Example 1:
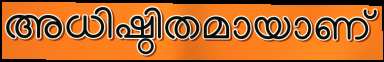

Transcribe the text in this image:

അധിഷ്ഠിതമായാണ്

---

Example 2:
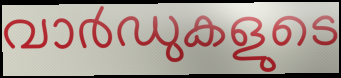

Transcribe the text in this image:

വാർഡുകളുടെ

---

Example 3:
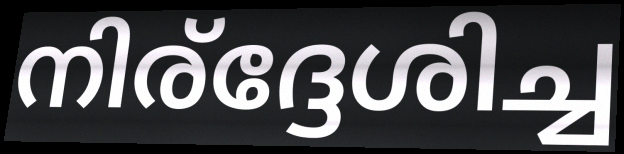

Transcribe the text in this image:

നിര്ദ്ദേശിച്ച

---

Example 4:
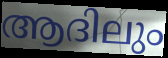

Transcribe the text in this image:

ആദിലും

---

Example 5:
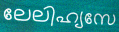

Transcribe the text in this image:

ലേലിഹ്യസേ